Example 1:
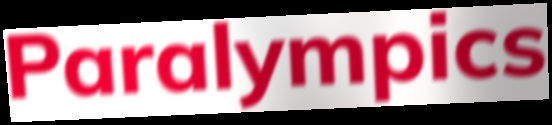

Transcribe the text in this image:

Paralympics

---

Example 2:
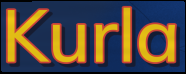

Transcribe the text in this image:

Kurla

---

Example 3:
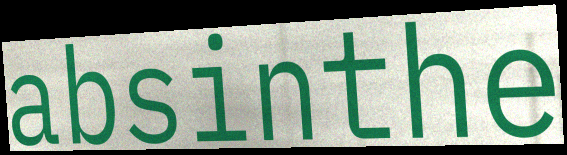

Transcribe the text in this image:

absinthe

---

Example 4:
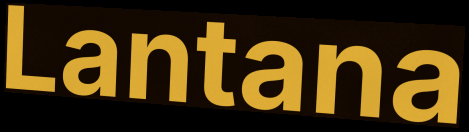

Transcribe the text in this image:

Lantana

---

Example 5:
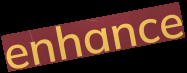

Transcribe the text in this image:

enhance